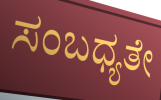
ಸಂಬಧ್ಯತೇ